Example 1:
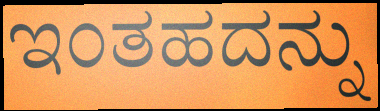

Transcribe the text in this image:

ಇಂತಹದನ್ನು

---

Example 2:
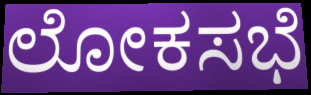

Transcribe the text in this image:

ಲೋಕಸಭೆ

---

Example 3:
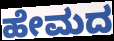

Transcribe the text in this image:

ಹೇಮದ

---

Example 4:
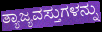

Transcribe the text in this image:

ತ್ಯಾಜ್ಯವಸ್ತುಗಳನ್ನು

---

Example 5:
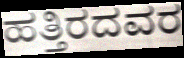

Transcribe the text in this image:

ಹತ್ತಿರದವರ